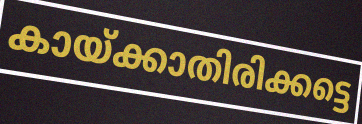
കായ്ക്കാതിരിക്കട്ടെ